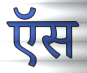
ऍस